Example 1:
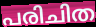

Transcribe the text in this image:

പരിചിത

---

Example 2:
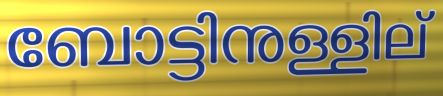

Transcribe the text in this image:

ബോട്ടിനുള്ളില്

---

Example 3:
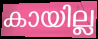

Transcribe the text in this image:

കായില്ല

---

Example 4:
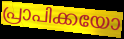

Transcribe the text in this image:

പ്രാപിക്കയോ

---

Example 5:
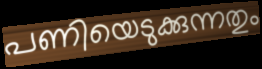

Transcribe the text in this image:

പണിയെടുക്കുന്നതും